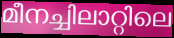
മീനച്ചിലാറ്റിലെ